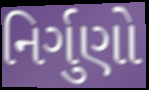
નિર્ગુણો